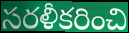
సరళీకరించి